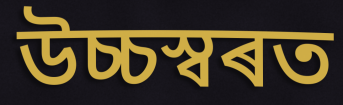
উচ্চস্বৰত